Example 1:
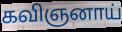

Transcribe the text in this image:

கவிஞனாய்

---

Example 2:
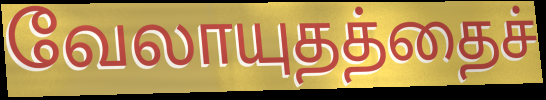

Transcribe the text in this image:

வேலாயுதத்தைச்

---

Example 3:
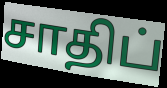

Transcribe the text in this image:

சாதிப்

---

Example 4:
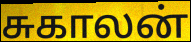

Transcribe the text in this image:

சுகாலன்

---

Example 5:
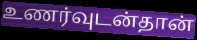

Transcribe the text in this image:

உணர்வுடன்தான்